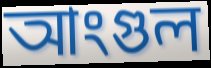
আংগুল